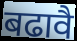
बढावै